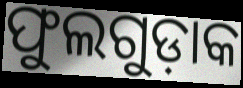
ଫୁଲଗୁଡ଼ାକ